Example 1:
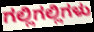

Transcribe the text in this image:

ಗಲ್ಲಿಗಲ್ಲಿಗಳು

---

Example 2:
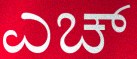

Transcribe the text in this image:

ಎಚ್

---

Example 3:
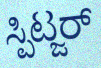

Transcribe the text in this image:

ಸ್ಪಿಟ್ಜರ್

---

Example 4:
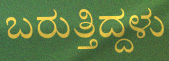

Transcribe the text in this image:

ಬರುತ್ತಿದ್ದಳು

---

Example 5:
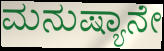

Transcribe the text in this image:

ಮನುಷ್ಯಾನೇ